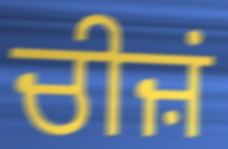
ਚੀਜ਼ਂ